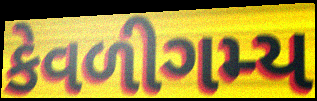
કેવળીગમ્ય